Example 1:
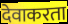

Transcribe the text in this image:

देवाकरता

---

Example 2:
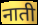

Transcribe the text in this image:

नाती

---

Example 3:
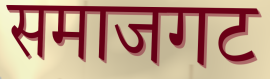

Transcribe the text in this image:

समाजगट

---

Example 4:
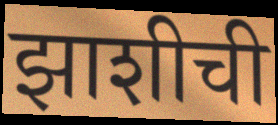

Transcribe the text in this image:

झाशीची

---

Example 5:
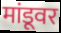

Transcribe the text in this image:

मांडूवर